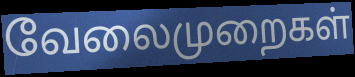
வேலைமுறைகள்